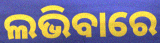
ଲଭିବାରେ